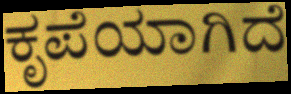
ಕೃಪೆಯಾಗಿದೆ